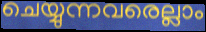
ചെയ്യുന്നവരെല്ലാം